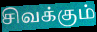
சிவக்கும்